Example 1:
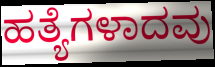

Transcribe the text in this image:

ಹತ್ಯೆಗಳಾದವು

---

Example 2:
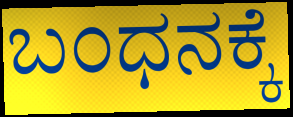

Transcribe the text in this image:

ಬಂಧನಕ್ಕೆ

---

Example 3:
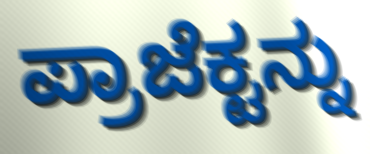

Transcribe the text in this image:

ಪ್ರಾಜೆಕ್ಟನ್ನು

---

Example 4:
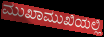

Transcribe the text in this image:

ಮುಖಾಮುಖಿಯಲ್ಲಿ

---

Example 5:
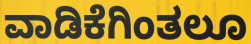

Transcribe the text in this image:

ವಾಡಿಕೆಗಿಂತಲೂ